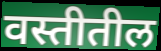
वस्तीतील